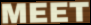
MEET